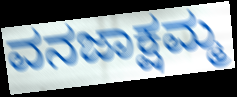
ವನಜಾಕ್ಷಮ್ಮ